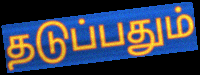
தடுப்பதும்